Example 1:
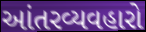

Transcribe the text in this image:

આંતરવ્યવહારો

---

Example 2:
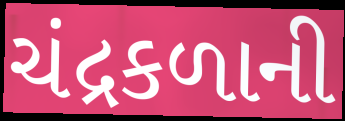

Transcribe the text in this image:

ચંદ્રકળાની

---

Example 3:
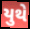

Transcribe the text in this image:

યુથે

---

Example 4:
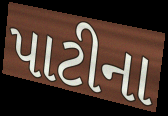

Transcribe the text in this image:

પાટીના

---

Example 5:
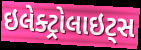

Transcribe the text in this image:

ઇલેક્ટ્રોલાઇટ્સ